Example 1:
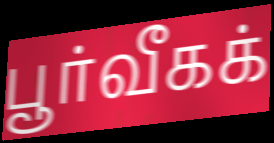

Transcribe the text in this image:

பூர்வீகக்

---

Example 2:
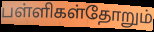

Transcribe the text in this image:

பள்ளிகள்தோறும்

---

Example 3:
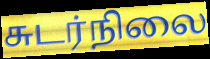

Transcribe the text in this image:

சுடர்நிலை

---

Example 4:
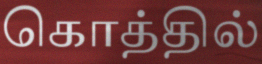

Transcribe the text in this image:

கொத்தில்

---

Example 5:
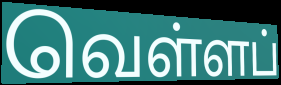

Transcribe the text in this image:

வெள்ளப்